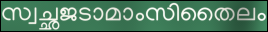
സ്വച്ഛജടാമാംസിതൈലം